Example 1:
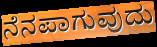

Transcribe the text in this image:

ನೆನಪಾಗುವುದು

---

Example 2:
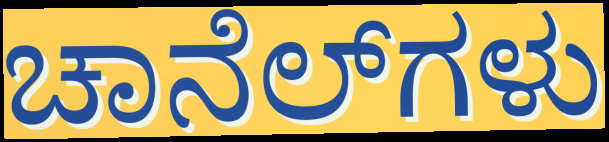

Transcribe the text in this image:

ಚಾನೆಲ್‌ಗಳು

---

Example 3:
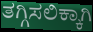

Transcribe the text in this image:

ತಗ್ಗಿಸಲಿಕ್ಕಾಗಿ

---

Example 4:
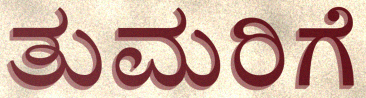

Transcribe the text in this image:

ತುಮರಿಗೆ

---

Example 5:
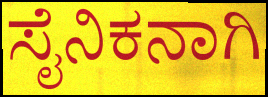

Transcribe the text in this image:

ಸೈನಿಕನಾಗಿ